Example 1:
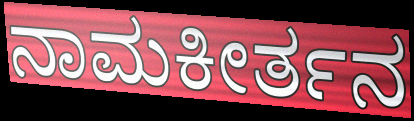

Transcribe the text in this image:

ನಾಮಕೀರ್ತನ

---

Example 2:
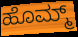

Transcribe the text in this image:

ಹೊಮ್ಮ್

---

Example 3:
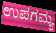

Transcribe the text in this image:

ಉಪಗಮ್ಯ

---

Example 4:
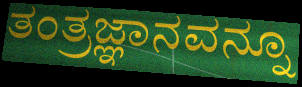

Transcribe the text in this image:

ತಂತ್ರಜ್ಞಾನವನ್ನೂ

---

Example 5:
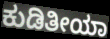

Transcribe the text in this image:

ಕುಡಿತೀಯಾ